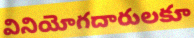
వినియోగదారులకూ